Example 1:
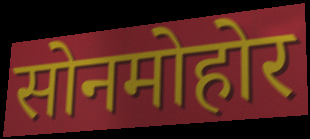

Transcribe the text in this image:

सोनमोहोर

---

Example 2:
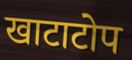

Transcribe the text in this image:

खाटाटोप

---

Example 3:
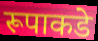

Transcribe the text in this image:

रूपाकडे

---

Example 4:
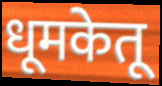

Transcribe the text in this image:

धूमकेतू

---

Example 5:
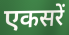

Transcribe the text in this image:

एकसरें